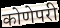
कोणेपरी